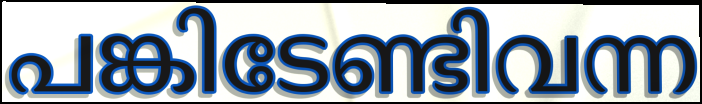
പങ്കിടേണ്ടിവന്ന